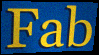
Fab